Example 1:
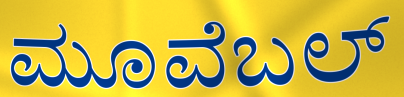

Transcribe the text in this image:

ಮೂವೆಬಲ್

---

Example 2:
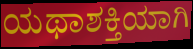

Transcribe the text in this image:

ಯಥಾಶಕ್ತಿಯಾಗಿ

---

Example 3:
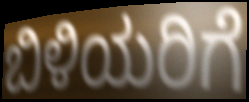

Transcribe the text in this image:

ಬಿಳಿಯರಿಗೆ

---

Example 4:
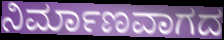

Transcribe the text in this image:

ನಿರ್ಮಾಣವಾಗದ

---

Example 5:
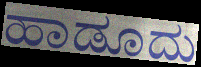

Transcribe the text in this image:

ಹಾಡೂದು